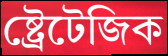
ষ্ট্ৰেটেজিক